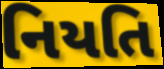
નિયતિ